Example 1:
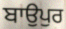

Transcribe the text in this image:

ਬਾਉਪੁਰ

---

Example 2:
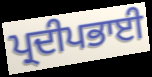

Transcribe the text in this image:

ਪ੍ਰਦੀਪਭਾਈ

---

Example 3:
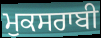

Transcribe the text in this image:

ਮੁਕਸਰਾਬੀ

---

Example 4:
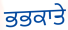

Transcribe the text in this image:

ਭਭਕਾਤੇ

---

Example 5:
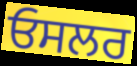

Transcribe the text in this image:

ਓਸਲਰ